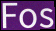
Fos